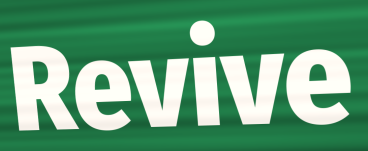
Revive